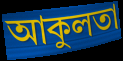
আকুলতা